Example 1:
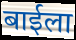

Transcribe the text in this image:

बाईला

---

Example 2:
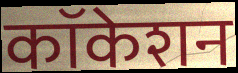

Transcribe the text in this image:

कॉकेशन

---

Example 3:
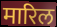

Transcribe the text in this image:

मारिल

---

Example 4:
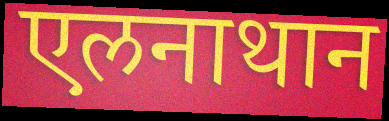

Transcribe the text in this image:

एलनाथान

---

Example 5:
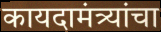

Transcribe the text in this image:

कायदामंत्र्यांचा